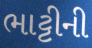
ભાટ્ટીની